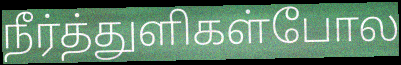
நீர்த்துளிகள்போல